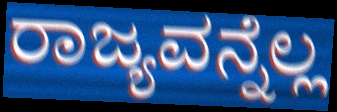
ರಾಜ್ಯವನ್ನೆಲ್ಲ